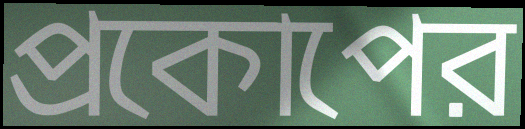
প্রকোপের